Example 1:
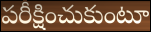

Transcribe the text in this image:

పరీక్షించుకుంటూ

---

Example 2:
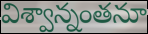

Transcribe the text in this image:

విశ్వాన్నంతనూ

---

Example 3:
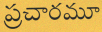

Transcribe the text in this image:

ప్రచారమూ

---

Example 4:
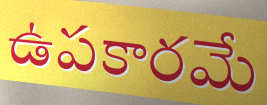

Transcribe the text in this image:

ఉపకారమే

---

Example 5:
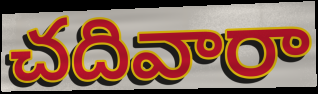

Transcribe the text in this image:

చదివారా